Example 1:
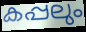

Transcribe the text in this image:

കപ്പലും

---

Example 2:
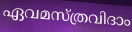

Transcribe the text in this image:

ഏവമസ്ത്രവിദാം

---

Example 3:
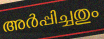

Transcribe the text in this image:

അർപ്പിച്ചതും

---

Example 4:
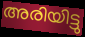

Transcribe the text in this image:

അരിയിട്ടു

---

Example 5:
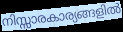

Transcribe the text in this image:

നിസ്സാരകാര്യങ്ങളിൽ